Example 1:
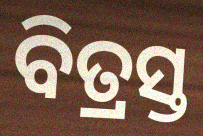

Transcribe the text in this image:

ବିତ୍ରସ୍ତ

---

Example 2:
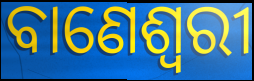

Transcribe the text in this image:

ବାଣେଶ୍ୱରୀ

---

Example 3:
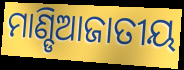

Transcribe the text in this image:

ମାଣ୍ଡିଆଜାତୀୟ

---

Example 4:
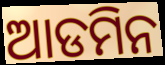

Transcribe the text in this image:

ଆଡମିନ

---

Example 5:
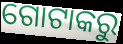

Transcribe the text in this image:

ଗୋଟାକରୁ